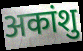
अकांशु